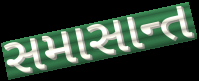
સમાસાન્ત